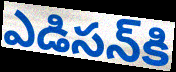
ఎడిసన్‌కి